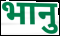
भानु